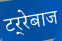
टर्रेबाज